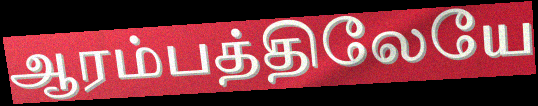
ஆரம்பத்திலேயே